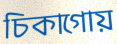
চিকাগোয়